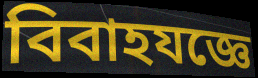
বিবাহযজ্ঞে